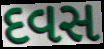
દવસ